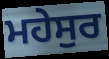
ਮਹੇਸੁਰ